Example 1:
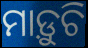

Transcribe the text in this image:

ମାଡ଼ୁଚି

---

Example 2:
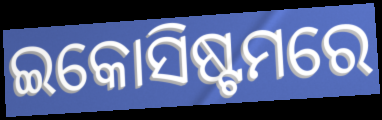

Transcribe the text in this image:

ଇକୋସିଷ୍ଟମରେ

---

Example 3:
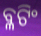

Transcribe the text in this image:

ବ୍ଳଟିଂ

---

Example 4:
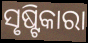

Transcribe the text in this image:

ସୃଷ୍ଟିକାରା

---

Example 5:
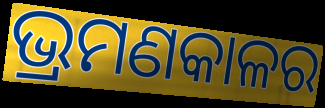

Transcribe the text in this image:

ଭ୍ରମଣକାଳର